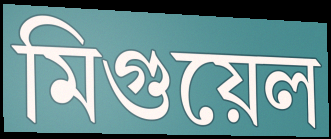
মিগুয়েল